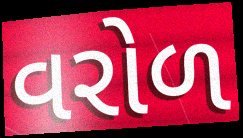
વરોળ